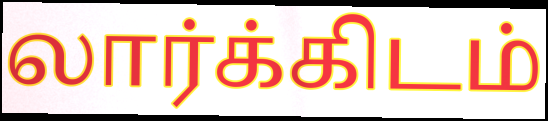
லார்க்கிடம்